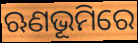
ଋଣଭୂମିରେ